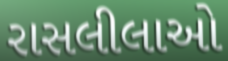
રાસલીલાઓ